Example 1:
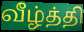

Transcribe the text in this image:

வீழ்த்தி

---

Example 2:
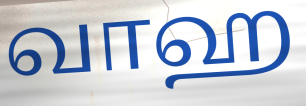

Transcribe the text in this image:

வாஹ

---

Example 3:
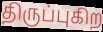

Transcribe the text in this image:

திருப்புகிற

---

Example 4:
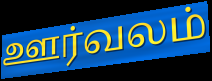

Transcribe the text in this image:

ஊர்வலம்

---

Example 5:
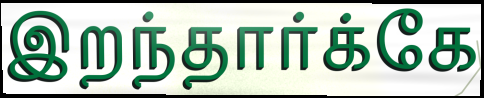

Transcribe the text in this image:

இறந்தார்க்கே